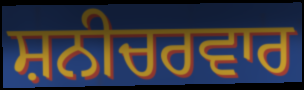
ਸ਼ਨੀਚਰਵਾਰ